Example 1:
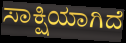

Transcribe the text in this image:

ಸಾಕ್ಷಿಯಾಗಿದೆ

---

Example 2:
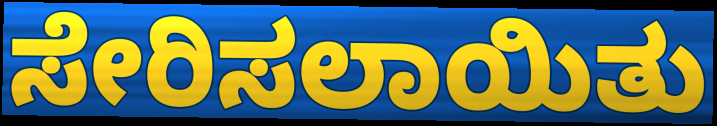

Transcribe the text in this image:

ಸೇರಿಸಲಾಯಿತು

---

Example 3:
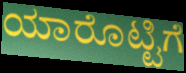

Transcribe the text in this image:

ಯಾರೊಟ್ಟಿಗೆ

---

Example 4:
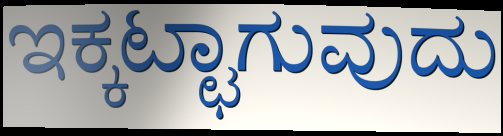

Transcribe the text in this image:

ಇಕ್ಕಟ್ಟಾಗುವುದು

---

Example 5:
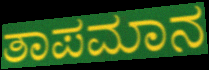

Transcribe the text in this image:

ತಾಪಮಾನ